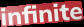
infinite